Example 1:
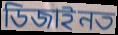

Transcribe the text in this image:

ডিজাইনত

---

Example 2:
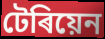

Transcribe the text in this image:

টেৰিয়েন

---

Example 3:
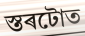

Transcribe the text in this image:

স্তৰটোত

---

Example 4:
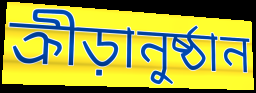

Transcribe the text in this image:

ক্ৰীড়ানুষ্ঠান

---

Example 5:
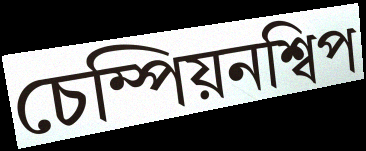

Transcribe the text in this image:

চেম্পিয়নশ্বিপ